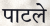
पाटले